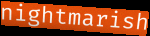
nightmarish